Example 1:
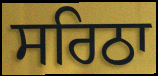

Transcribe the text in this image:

ਸਰਿਠਾ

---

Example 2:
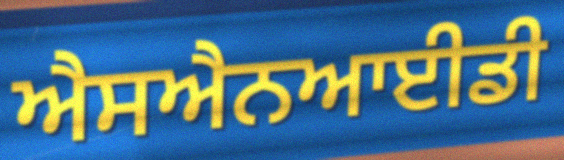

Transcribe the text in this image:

ਐਸਐਨਆਈਡੀ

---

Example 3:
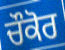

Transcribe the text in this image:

ਚੌਕੋਰ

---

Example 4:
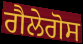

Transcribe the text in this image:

ਗੈਲੇਗੋਸ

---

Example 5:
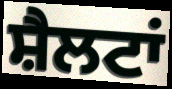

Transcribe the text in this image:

ਸ਼ੈਲਟਾਂ